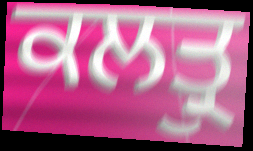
ਕਲਤ੍ਰੁ